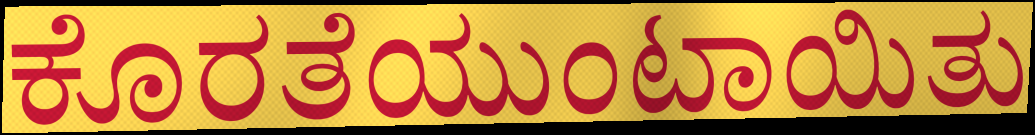
ಕೊರತೆಯುಂಟಾಯಿತು